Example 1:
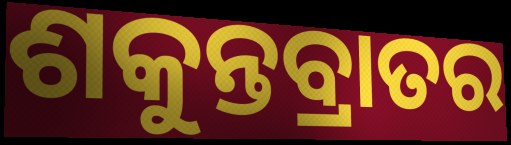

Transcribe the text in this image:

ଶକୁନ୍ତବ୍ରାତର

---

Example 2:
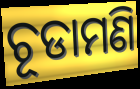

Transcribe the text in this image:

ଚୂଡାମଣି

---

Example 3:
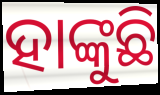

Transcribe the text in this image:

ହାଙ୍କୁଛି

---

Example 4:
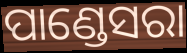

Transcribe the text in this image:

ପାଣ୍ଡେସରା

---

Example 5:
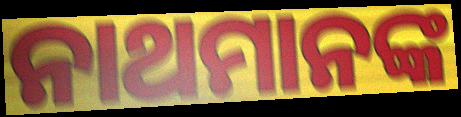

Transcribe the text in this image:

ନାଥମାନଙ୍କ